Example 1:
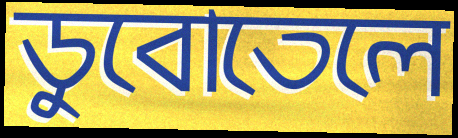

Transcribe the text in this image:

ডুবোতেলে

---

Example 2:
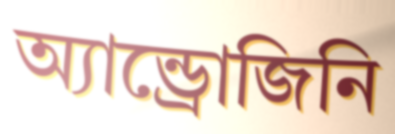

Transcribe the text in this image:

অ্যান্ড্রোজিনি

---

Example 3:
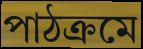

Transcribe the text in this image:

পাঠক্রমে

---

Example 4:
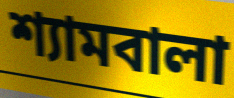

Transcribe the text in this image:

শ্যামবালা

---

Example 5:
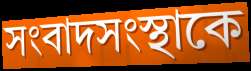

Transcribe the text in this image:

সংবাদসংস্থাকে